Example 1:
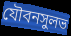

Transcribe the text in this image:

যৌবনসুলভ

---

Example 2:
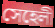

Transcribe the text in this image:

সেহেলী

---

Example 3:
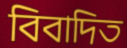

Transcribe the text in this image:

বিবাদিত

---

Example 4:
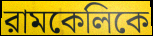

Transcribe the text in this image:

রামকেলিকে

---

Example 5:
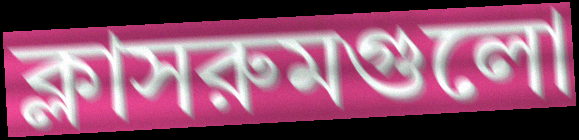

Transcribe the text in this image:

ক্লাসরুমগুলো